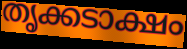
തൃക്കടാക്ഷം